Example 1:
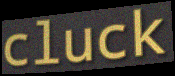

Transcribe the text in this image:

cluck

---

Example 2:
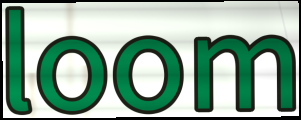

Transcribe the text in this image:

loom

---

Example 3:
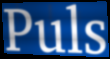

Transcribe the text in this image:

Puls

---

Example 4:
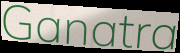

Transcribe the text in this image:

Ganatra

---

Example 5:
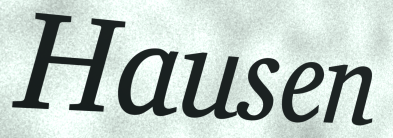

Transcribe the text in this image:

Hausen